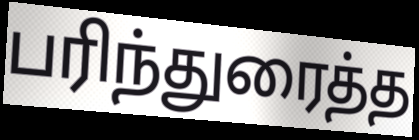
பரிந்துரைத்த